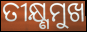
ତୀକ୍ଷ୍ଣମୁଖ